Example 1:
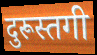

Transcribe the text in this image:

दुरूस्तगी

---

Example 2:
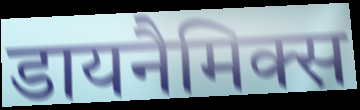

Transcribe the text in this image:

डायनैमिक्‍स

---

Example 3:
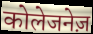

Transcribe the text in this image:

कोलेजनेज़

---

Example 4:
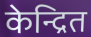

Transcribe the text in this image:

केन्द्रित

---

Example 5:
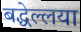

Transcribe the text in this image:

बद्धेल्लया